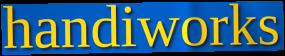
handiworks